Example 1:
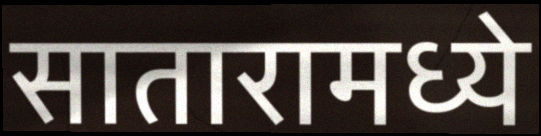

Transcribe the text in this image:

सातारामध्ये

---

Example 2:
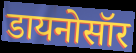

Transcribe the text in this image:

डायनोसॉर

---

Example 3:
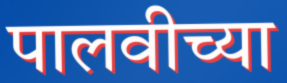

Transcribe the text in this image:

पालवीच्या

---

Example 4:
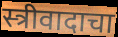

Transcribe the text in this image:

स्त्रीवादाचा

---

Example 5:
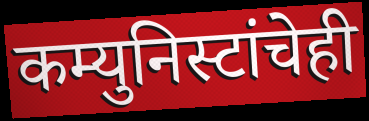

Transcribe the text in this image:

कम्युनिस्टांचेही